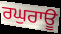
ਰਘੁਰਾਊ